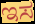
ಇಸ